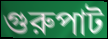
গুরুপাট